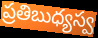
ప్రతిబుధ్యస్వ